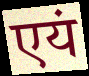
एयं